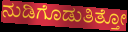
ನುಡಿಗೊಡುತಿತ್ತೋ